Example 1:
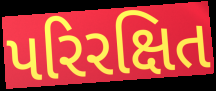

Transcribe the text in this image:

પરિરક્ષિત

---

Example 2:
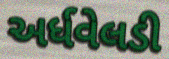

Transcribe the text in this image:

અર્ધવેલડી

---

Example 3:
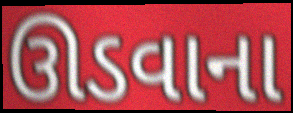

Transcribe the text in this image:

ઊડવાના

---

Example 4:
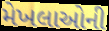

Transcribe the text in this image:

મેખલાઓની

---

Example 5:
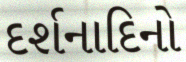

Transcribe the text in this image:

દર્શનાદિનો